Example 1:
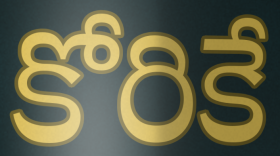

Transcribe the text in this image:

కోరికే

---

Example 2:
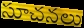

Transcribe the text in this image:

సూచనలు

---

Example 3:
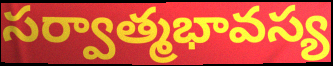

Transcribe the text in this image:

సర్వాత్మభావస్య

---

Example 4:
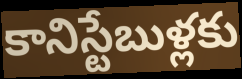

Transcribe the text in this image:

కానిస్టేబుళ్లకు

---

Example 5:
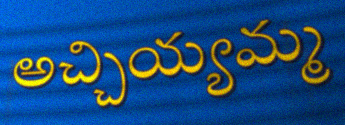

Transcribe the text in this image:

అచ్చియ్యమ్మ